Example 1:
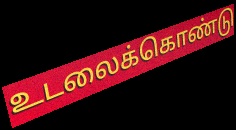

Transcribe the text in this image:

உடலைக்கொண்டு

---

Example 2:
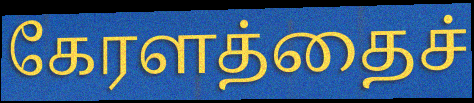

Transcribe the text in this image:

கேரளத்தைச்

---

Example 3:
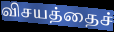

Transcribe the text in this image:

விசயத்தைச்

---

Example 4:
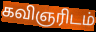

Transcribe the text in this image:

கவிஞரிடம்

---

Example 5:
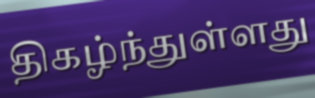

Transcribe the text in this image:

திகழ்ந்துள்ளது